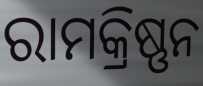
ରାମକ୍ରିଷ୍ଣନ